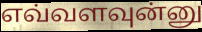
எவ்வளவுன்னு